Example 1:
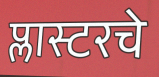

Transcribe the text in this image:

प्लास्टरचे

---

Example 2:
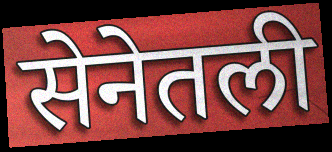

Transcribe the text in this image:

सेनेतली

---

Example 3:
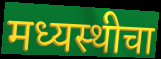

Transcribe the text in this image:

मध्यस्थीचा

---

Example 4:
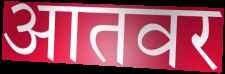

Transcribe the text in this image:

आतवर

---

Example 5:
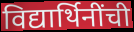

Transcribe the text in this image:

विद्यार्थिनींची